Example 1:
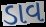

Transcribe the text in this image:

ડાવ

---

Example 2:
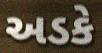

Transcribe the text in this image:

અડકે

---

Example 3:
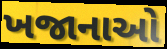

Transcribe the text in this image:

ખજાનાઓ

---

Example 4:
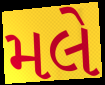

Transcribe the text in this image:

મલે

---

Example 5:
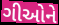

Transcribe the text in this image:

ગીઓને